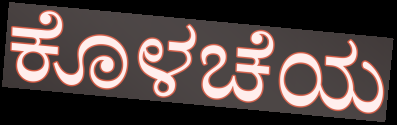
ಕೊಳಚೆಯ